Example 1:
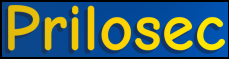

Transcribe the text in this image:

Prilosec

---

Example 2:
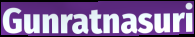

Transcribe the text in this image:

Gunratnasuri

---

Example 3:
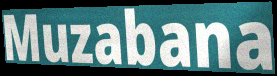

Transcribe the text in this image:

Muzabana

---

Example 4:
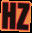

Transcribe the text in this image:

HZ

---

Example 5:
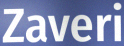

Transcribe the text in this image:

Zaveri